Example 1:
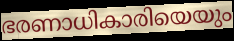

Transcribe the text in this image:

ഭരണാധികാരിയെയും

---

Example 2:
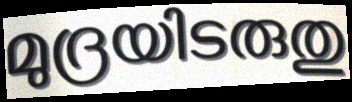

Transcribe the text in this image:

മുദ്രയിടരുതു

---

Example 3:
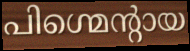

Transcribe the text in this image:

പിഗ്മെന്റായ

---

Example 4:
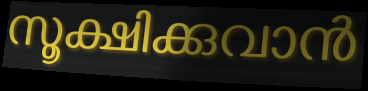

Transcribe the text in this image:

സൂക്ഷിക്കുവാൻ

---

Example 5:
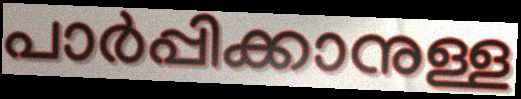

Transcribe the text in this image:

പാർപ്പിക്കാനുള്ള